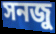
সনজু